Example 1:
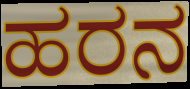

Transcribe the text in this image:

ಹರನ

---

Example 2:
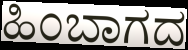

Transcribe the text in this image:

ಹಿಂಬಾಗದ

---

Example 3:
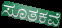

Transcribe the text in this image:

ಸೂತಕವೆ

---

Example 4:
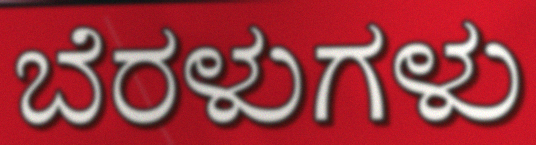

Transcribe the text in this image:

ಬೆರಳುಗಳು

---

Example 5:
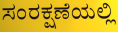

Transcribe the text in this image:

ಸಂರಕ್ಷಣೆಯಲ್ಲಿ